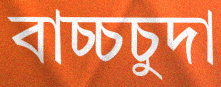
বাচ্চচুদা